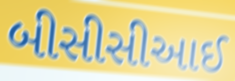
બીસીસીઆઈ